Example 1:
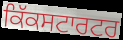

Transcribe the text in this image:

ਕਿੱਕਸਟਾਰਟਰ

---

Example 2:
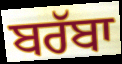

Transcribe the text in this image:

ਬਰੱਬਾ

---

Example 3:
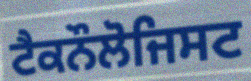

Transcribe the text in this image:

ਟੈਕਨੌਲੋਜਿਸਟ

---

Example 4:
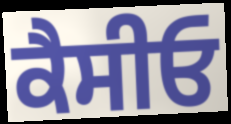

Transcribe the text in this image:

ਕੈਸੀਓ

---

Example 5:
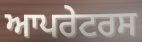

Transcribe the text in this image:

ਆਪਰੇਟਰਸ